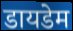
डायडेम